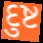
દુષ્ટ